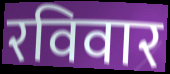
रविवार